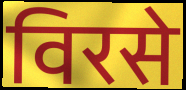
विरसे